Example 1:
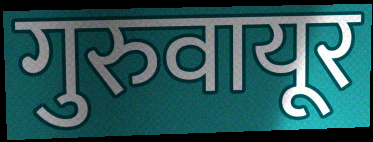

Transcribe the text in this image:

गुरुवायूर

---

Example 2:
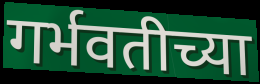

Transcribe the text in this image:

गर्भवतीच्या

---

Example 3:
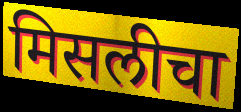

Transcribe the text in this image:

मिसलीचा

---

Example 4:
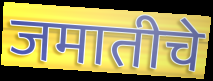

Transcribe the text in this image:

जमातीचे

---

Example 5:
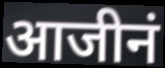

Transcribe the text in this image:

आजीनं